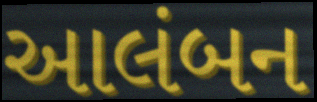
આલંબન